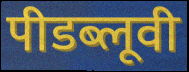
पीडब्लूवी